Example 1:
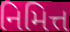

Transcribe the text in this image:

નિમિત્ત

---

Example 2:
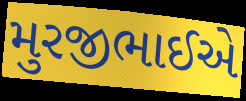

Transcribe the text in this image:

મુરજીભાઈએ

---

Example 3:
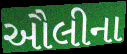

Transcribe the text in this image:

ઔલીના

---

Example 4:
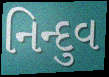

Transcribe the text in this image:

નિન્દુવ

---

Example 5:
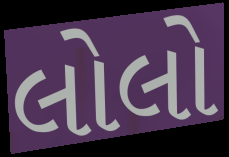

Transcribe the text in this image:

લોલો